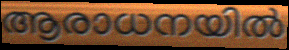
ആരാധനയിൽ